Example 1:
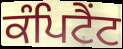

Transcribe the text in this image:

ਕੰਪਿਟੈਂਟ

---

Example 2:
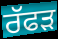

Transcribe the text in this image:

ਰੱਫੜ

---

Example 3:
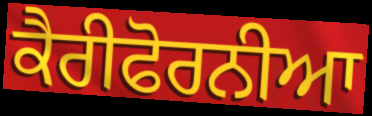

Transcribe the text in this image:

ਕੈਰੀਫੋਰਨੀਆ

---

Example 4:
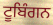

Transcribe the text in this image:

ਟੂਬਿੰਗਨ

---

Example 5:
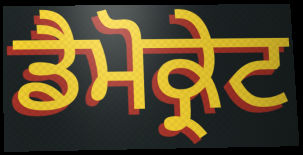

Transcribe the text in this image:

ਡੈਮੋਕ੍ਰੇਟ